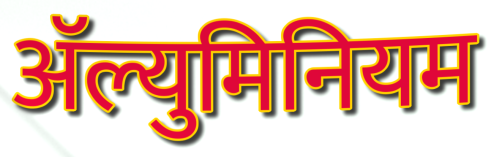
ॲल्युमिनियम